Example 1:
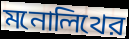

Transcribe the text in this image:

মনোলিথের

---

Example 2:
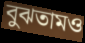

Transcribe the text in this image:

বুঝতামও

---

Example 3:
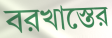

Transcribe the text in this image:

বরখাস্তের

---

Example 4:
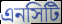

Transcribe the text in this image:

এনসিটি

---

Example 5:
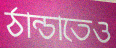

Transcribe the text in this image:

ঠান্ডাতেও